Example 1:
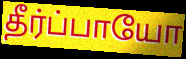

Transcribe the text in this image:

தீர்ப்பாயோ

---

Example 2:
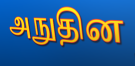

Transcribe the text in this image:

அநுதின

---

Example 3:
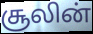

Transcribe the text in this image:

சூலின்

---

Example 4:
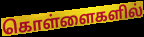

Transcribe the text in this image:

கொள்ளைகளில்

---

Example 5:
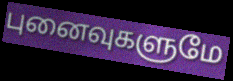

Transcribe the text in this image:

புனைவுகளுமே